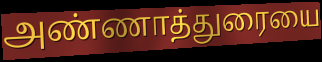
அண்ணாத்துரையை